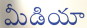
మీడియా